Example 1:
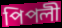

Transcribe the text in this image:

পিপলী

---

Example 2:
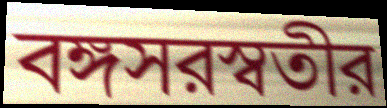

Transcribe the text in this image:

বঙ্গসরস্বতীর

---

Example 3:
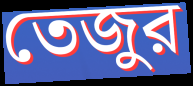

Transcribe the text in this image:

তেজুর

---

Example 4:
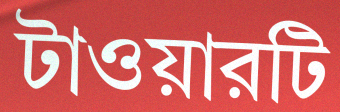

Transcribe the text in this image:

টাওয়ারটি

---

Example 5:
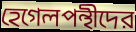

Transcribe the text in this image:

হেগেলপন্থীদের